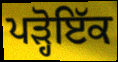
ਪੜ੍ਹੋਇੱਕ